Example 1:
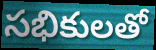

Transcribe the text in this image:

సభికులతో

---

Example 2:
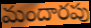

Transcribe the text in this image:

మందారపు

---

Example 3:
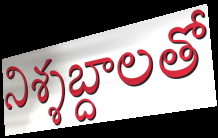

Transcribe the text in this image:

నిశ్శబ్దాలతో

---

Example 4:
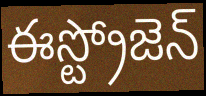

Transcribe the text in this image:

ఈస్ట్రోజెన్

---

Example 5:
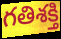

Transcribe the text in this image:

గతిశక్తి